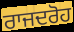
ਰਾਜਦਰੋਹ